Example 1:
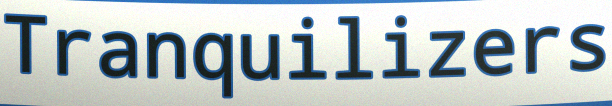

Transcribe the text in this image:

Tranquilizers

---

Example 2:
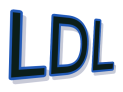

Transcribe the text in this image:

LDL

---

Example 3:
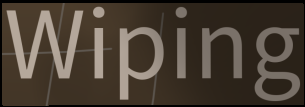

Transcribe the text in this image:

Wiping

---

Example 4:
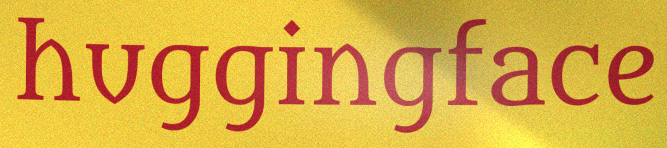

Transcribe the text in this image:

huggingface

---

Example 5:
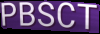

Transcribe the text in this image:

PBSCT